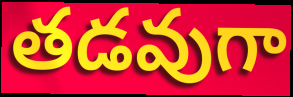
తడవుగా